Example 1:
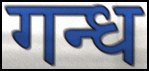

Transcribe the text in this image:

गन्ध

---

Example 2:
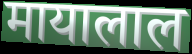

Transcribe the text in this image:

मायालाल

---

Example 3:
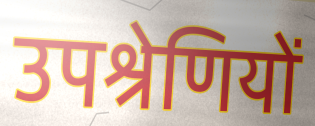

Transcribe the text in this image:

उपश्रेणियों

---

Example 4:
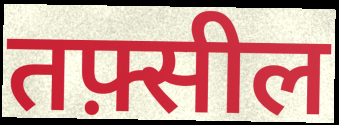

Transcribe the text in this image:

तफ़्सील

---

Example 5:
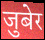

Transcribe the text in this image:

जुबेर